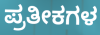
ಪ್ರತೀಕಗಳ